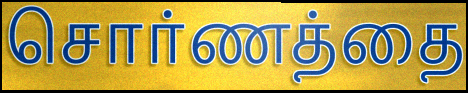
சொர்ணத்தை